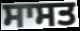
ਸਾਸਤ